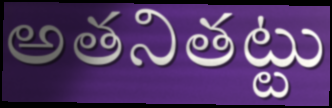
అతనితట్టు